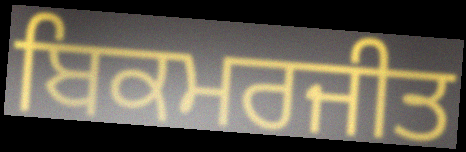
ਬਿਕਮਰਜੀਤ